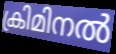
ക്രിമിനൽ